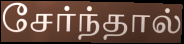
சேர்ந்தால்